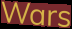
Wars